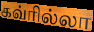
கவ்ரில்லா